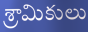
శ్రామికులు